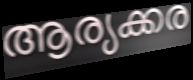
ആര്യക്കര